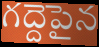
గద్దెపైన